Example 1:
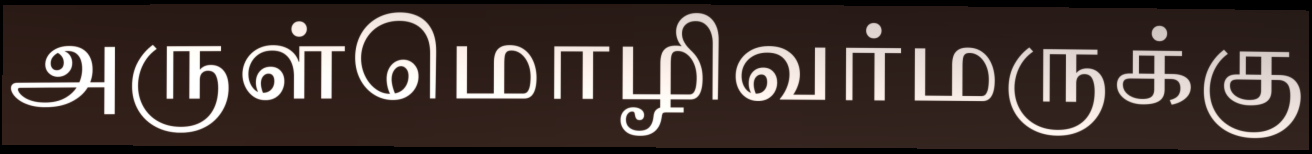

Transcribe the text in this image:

அருள்மொழிவர்மருக்கு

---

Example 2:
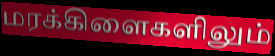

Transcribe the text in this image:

மரக்கிளைகளிலும்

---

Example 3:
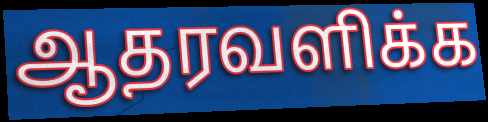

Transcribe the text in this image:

ஆதரவளிக்க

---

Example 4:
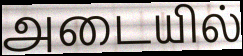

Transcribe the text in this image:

அடையில்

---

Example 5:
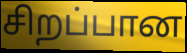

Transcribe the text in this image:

சிறப்பான